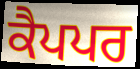
ਕੈਪਪਰ